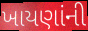
ખાયણાંની